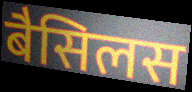
बैसिलस